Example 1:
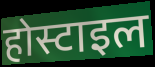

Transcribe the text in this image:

होस्टाइल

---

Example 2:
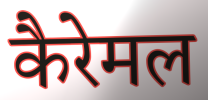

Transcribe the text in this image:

कैरेमल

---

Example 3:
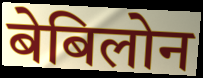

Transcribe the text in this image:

बेबिलोन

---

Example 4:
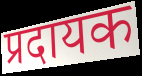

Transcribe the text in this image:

प्रदायक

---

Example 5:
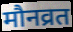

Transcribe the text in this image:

मौनव्रत